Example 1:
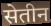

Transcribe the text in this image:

सेतीन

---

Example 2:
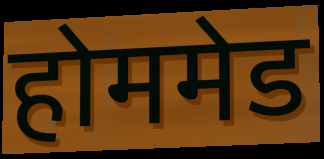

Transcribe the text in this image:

होममेड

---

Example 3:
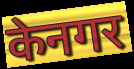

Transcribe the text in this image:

केनगर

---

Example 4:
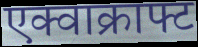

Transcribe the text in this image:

एक्वाक्राफ्ट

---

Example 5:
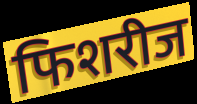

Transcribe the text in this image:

फिशरीज